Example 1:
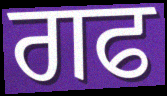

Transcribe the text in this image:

ਗਫ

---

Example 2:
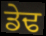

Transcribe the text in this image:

ਡੇਢ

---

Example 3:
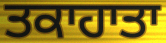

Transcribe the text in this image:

ਤਕਾਹਾਤਾ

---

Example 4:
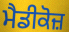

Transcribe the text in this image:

ਮੈਡੀਕੋਜ਼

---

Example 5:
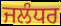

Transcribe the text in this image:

ਜਲੰਧਰ